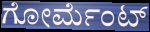
ಗೋರ್ಮೆಂಟ್